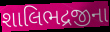
શાલિભદ્રજીના